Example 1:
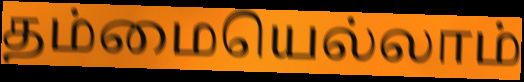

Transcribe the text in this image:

தம்மையெல்லாம்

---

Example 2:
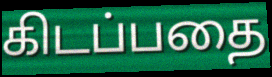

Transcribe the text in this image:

கிடப்பதை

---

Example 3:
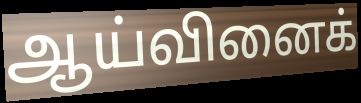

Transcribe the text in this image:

ஆய்வினைக்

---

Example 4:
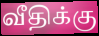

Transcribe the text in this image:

வீதிக்கு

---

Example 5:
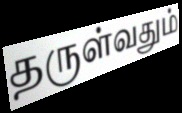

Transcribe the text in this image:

தருள்வதும்